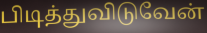
பிடித்துவிடுவேன்